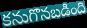
కనుగొనబడింది